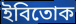
ইবিতোক